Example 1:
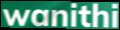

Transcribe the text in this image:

wanithi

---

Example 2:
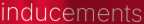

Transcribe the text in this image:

inducements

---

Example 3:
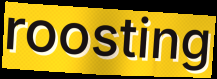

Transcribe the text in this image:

roosting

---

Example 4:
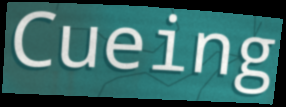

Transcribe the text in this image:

Cueing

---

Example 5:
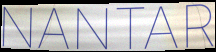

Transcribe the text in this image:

NANTAR